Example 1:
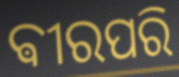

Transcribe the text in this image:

ଵୀରପରି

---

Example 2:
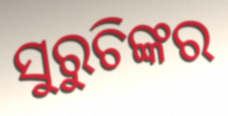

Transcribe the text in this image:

ସୁରୁଚିଙ୍କର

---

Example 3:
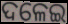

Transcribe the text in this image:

ଦଳେଇ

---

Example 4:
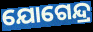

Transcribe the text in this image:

ଯୋଗେନ୍ଦ୍ର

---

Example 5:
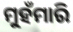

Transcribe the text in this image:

ମୁହଁମାରି